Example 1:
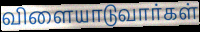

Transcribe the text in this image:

விளையாடுவார்கள்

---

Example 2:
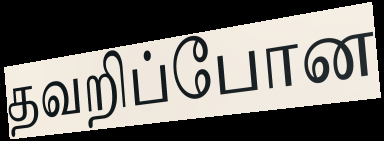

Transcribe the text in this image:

தவறிப்போன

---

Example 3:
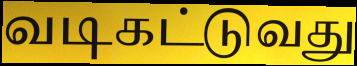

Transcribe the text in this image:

வடிகட்டுவது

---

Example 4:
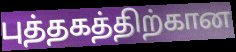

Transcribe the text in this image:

புத்தகத்திற்கான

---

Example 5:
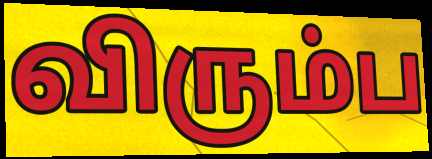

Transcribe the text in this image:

விரும்ப